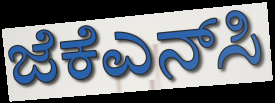
ಜೆಕೆಎನ್‌ಸಿ